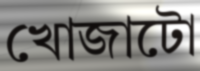
খোজাটো